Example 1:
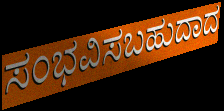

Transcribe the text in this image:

ಸಂಭವಿಸಬಹುದಾದ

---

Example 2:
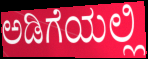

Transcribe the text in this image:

ಅಡಿಗೆಯಲ್ಲಿ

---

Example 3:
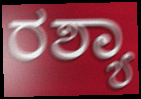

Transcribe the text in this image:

ರಶ್ಯಾ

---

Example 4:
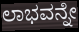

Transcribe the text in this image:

ಲಾಭವನ್ನೇ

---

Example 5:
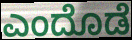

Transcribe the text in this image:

ಎಂದೊಡೆ